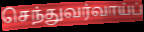
செந்துவர்வாய்ப்